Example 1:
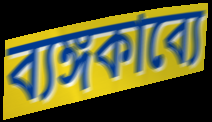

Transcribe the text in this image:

ব্যঙ্গকাব্যে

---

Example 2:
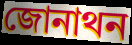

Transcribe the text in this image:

জোনাথন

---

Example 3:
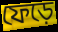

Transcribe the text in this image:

ফেড়ে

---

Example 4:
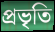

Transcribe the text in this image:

প্রভৃতি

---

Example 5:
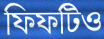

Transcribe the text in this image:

ফিফটিও